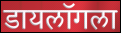
डायलॉगला